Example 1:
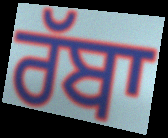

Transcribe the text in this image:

ਰੱਬਾ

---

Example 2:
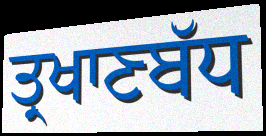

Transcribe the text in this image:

ਤ੍ਰਖਾਣਬੱਧ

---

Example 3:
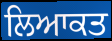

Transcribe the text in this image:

ਲਿਆਕਤ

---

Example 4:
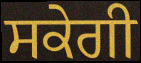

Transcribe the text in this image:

ਸਕੇਗੀ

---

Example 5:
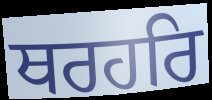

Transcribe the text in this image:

ਥਰਹਰਿ